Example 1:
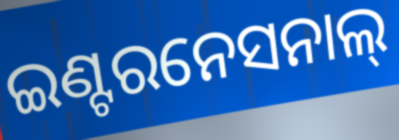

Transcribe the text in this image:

ଇଣ୍ଟରନେସନାଲ୍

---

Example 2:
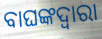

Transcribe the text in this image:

ବାଘଙ୍କଦ୍ୱାରା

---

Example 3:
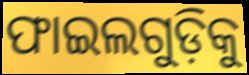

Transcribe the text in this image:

ଫାଇଲଗୁଡ଼ିକୁ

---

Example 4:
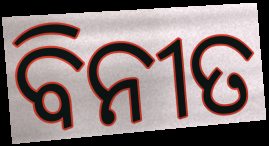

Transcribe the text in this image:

ବିନୀତ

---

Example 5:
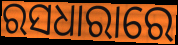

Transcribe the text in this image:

ରସଧାରାରେ